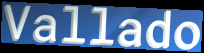
Vallado